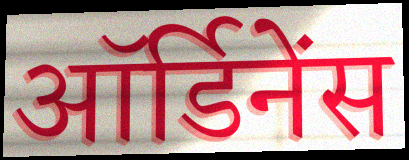
ऑर्डिनेंस